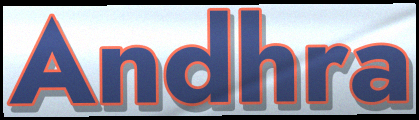
Andhra